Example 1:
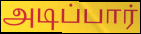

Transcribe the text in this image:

அடிப்பார்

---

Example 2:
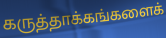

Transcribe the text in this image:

கருத்தாக்கங்களைக்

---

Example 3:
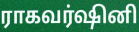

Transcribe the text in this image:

ராகவர்ஷினி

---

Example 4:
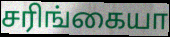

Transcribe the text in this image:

சரிங்கையா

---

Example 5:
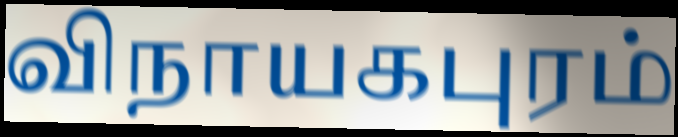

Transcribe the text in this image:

விநாயகபுரம்